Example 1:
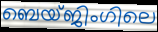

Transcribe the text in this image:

ബെയ്ജിംഗിലെ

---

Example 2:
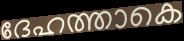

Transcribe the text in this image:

ദേഹത്താകെ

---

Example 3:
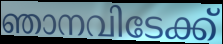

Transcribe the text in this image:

ഞാനവിടേക്ക്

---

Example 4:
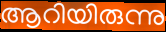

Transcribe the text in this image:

ആറിയിരുന്നു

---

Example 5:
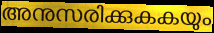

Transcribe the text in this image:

അനുസരിക്കുകകയും